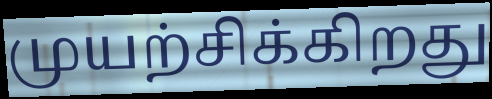
முயற்சிக்கிறது